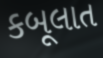
કબૂલાત